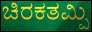
ಚಿರಕತಮ್ಪಿ